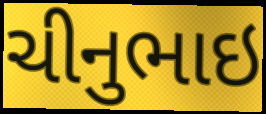
ચીનુભાઇ